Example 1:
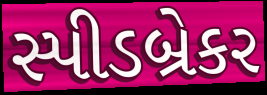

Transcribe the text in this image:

સ્પીડબ્રેકર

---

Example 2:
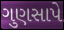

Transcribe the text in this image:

ગુણસાપે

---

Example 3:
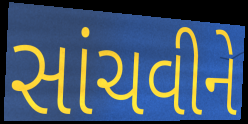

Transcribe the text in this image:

સાંચવીને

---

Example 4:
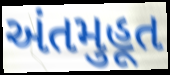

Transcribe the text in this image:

અંતમુહૂત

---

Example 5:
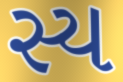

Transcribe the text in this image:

સ્ય